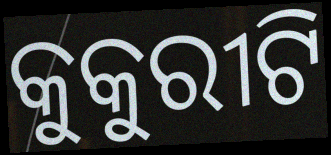
କୁକୁରୀଟି